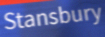
Stansbury